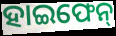
ହାଇଫେନ୍